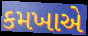
કમખાએ